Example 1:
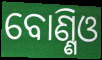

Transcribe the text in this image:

ବୋଣ୍ଣିଓ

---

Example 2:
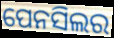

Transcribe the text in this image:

ପେନସିଲର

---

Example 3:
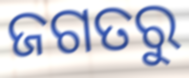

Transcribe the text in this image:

ଜଗତରୁ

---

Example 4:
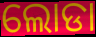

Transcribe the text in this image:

ଲୋଡା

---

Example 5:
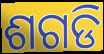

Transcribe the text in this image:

ଶଗଡି